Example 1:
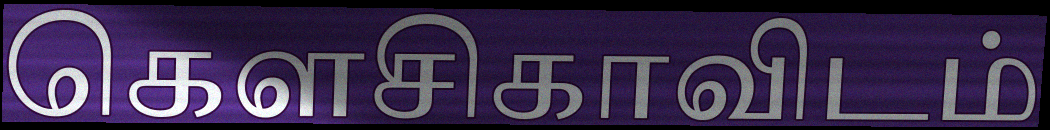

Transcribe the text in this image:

கௌசிகாவிடம்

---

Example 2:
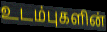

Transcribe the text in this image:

உடம்புகளின்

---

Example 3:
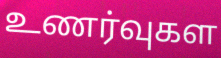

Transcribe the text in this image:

உணர்வுகள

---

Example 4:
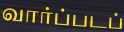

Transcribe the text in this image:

வார்ப்படப்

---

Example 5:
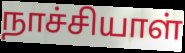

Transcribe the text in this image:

நாச்சியாள்